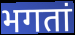
भगतां